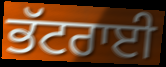
ਭੱਟਰਾਈ